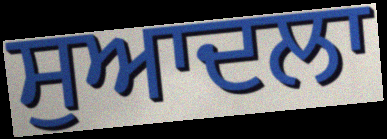
ਸੁਆਦਲਾ